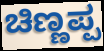
ಚಿಣ್ಣಪ್ಪ